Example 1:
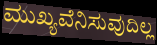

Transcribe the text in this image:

ಮುಖ್ಯವೆನಿಸುವುದಿಲ್ಲ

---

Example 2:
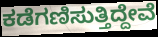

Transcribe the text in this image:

ಕಡೆಗಣಿಸುತ್ತಿದ್ದೇವೆ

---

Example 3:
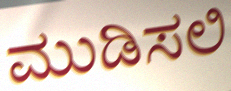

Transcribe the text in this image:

ಮುಡಿಸಲಿ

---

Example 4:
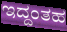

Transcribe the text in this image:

ಇದ್ದಂತಹ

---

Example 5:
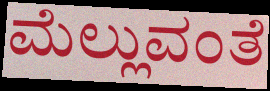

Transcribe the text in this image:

ಮೆಲ್ಲುವಂತೆ